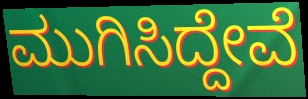
ಮುಗಿಸಿದ್ದೇವೆ